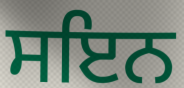
ਸਇਨ